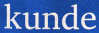
kunde